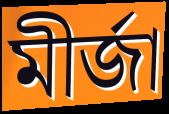
মীর্জা